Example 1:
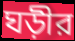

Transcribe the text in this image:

ঘড়ীর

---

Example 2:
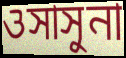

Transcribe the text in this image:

ওসাসুনা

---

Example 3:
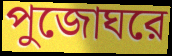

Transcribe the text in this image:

পুজোঘরে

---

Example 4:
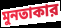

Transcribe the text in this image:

মুনতাকার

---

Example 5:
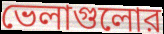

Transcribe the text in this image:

ভেলাগুলোর